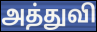
அத்துவி